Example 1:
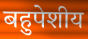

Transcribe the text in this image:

बहुपेशीय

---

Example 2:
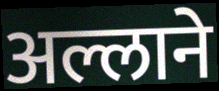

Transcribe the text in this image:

अल्लाने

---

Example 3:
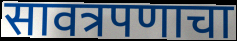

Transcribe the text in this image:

सावत्रपणाचा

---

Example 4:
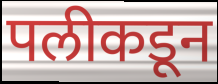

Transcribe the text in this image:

पलीकडून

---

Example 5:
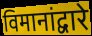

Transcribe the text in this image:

विमानांद्वारे